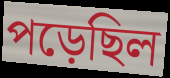
পড়েছিল